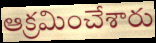
ఆక్రమించేశారు